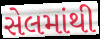
સેલમાંથી